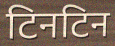
टिनटिन